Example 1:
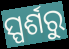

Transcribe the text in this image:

ସ୍ପର୍ଶରୁ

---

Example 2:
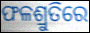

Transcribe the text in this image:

ଫଳଶ୍ରୁତିରେ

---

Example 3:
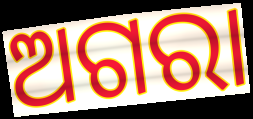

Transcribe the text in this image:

ଅଗରା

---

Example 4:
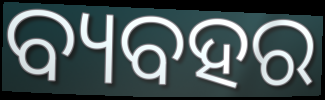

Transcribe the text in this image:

ବ୍ୟବହର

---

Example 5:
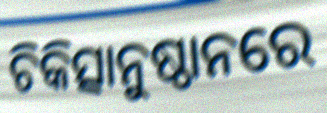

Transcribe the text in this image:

ଚିକିତ୍ସାନୁଷ୍ଠାନରେ